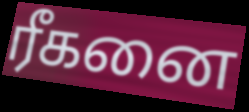
ரீகனை